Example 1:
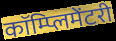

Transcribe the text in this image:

कॉम्प्लिमेंटरी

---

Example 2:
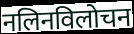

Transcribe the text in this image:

नलिनविलोचन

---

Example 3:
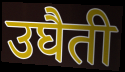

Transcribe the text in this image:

उघैती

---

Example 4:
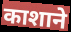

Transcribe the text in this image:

काशाने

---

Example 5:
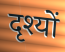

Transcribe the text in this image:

दृश्यों